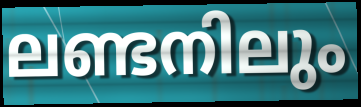
ലണ്ടനിലും